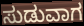
ಸುಡುವಾಗ